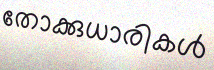
തോക്കുധാരികൾ